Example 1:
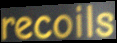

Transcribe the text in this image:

recoils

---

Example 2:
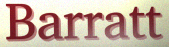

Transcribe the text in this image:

Barratt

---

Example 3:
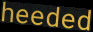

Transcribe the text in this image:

heeded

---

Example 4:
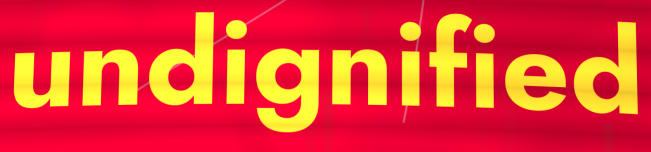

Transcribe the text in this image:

undignified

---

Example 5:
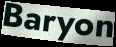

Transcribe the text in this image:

Baryon